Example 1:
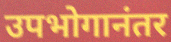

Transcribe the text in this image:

उपभोगानंतर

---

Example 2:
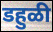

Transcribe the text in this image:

डहुळी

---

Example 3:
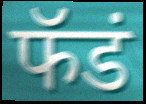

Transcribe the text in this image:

फॅडं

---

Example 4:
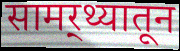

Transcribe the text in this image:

सामर्थ्यातून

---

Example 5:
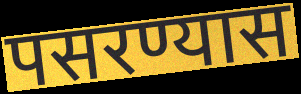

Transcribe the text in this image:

पसरण्यास